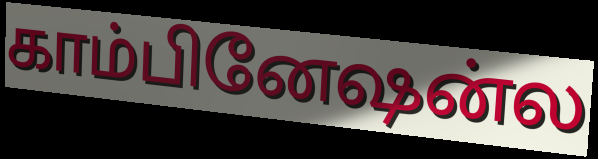
காம்பினேஷன்ல